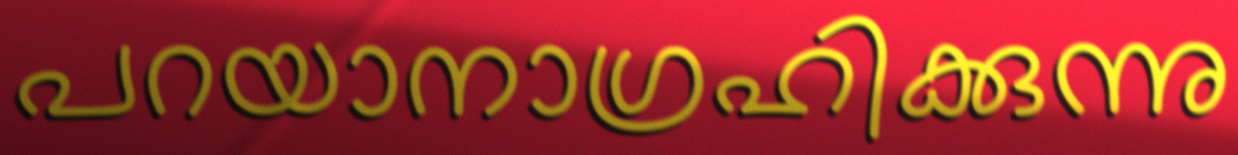
പറയാനാഗ്രഹിക്കുന്നു